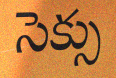
సెక్సు